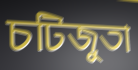
চটিজুতা